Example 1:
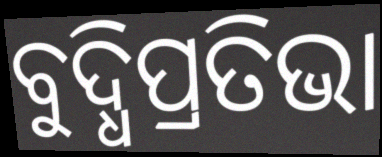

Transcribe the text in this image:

ବୁଦ୍ଧିପ୍ରତିଭା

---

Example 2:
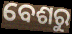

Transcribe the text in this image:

ବେଶରୁ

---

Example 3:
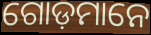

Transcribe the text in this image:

ଗୋଡ଼ମାନେ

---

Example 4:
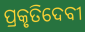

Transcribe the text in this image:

ପ୍ରକୃତିଦେବୀ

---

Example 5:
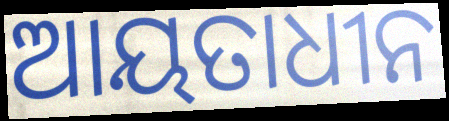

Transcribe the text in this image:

ଆୟତାଧୀନ